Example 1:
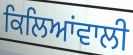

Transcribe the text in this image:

ਕਿਲਿਆਂਵਾਲੀ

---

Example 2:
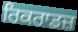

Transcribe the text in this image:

ਰਿਕਰਾਡਜ਼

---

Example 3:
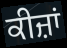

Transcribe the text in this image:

ਕੀਜ਼ਾਂ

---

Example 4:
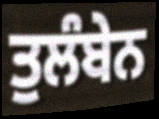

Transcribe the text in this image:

ਤੁਲੰਬੇਨ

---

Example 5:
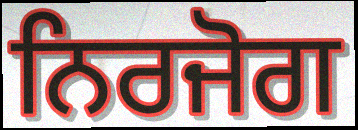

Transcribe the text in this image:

ਨਿਰਜੋਗ